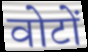
वोटों